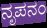
ನೃಪನಂ